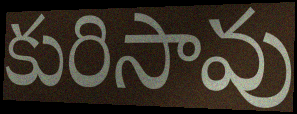
కురిసావు